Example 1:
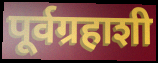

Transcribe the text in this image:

पूर्वग्रहाशी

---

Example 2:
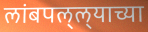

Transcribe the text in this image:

लांबपल्ल्याच्या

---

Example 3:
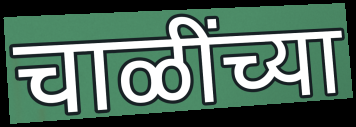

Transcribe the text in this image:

चाळींच्या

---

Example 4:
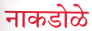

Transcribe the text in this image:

नाकडोळे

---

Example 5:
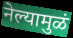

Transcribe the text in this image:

नेल्यामुळं